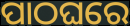
ପାଠଘରେ